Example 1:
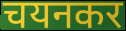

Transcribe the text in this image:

चयनकर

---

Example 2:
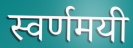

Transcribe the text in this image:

स्वर्णमयी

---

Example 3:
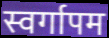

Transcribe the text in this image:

स्वर्गापम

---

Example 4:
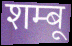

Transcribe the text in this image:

शम्बू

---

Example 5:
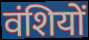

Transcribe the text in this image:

वंशियों